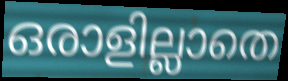
ഒരാളില്ലാതെ